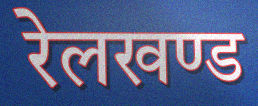
रेलखण्ड